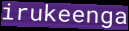
irukeenga